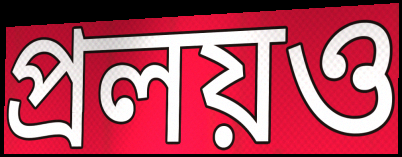
প্রলয়ও